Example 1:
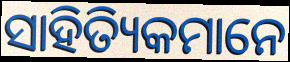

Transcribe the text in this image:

ସାହିତ୍ୟିକମାନେ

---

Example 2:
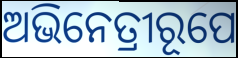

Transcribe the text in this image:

ଅଭିନେତ୍ରୀରୂପେ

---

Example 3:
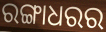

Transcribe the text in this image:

ରଙ୍ଗାଧରର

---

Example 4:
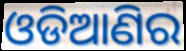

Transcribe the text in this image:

ଓଡିଆଣିର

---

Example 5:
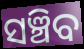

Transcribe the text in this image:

ସଞ୍ଚିବ